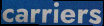
carriers